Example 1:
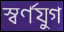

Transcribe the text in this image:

স্বর্ণযুগ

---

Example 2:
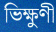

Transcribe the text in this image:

ভিক্ষুণী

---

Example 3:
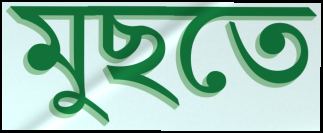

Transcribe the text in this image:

মুছতে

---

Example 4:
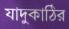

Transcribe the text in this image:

যাদুকাঠির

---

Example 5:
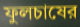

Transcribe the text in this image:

ফুলচাষের